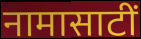
नामासाटीं